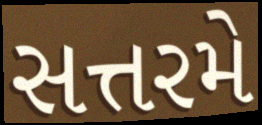
સત્તરમે